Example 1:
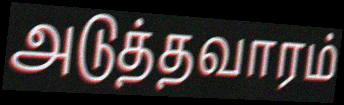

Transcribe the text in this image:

அடுத்தவாரம்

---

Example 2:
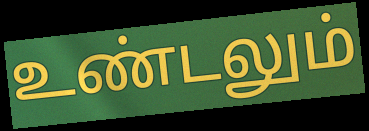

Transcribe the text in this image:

உண்டலும்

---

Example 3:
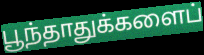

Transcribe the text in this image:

பூந்தாதுக்களைப்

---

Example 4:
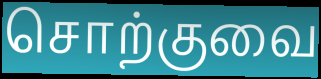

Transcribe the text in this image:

சொற்குவை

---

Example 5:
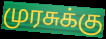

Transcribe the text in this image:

முரசுக்கு